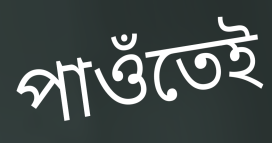
পাওঁতেই